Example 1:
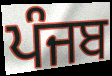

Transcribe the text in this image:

ਪੰਜਬ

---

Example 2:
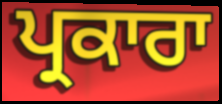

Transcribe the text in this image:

ਪ੍ਰਕਾਰਾ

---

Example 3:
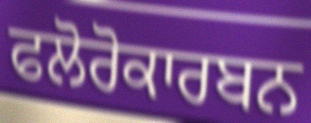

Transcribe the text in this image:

ਫਲੋਰੋਕਾਰਬਨ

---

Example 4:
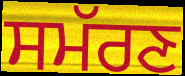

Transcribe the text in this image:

ਸਮੱਰਣ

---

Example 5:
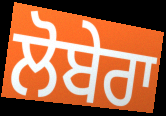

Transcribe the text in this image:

ਲੋਬੇਰਾ